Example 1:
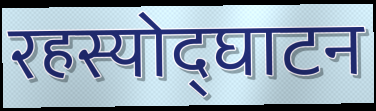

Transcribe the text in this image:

रहस्योद्घाटन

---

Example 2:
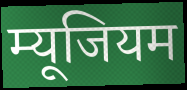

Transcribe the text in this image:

म्यूजियम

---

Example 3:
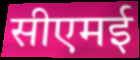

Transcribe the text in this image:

सीएमई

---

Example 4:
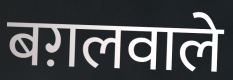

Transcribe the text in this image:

बग़लवाले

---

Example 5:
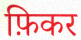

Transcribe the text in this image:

फ़िकर